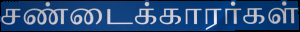
சண்டைக்காரர்கள்